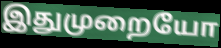
இதுமுறையோ